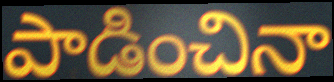
పాడించినా